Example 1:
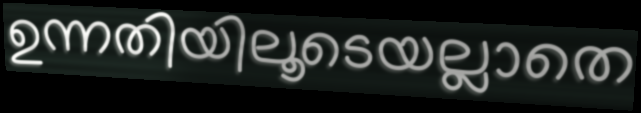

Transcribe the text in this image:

ഉന്നതിയിലൂടെയല്ലാതെ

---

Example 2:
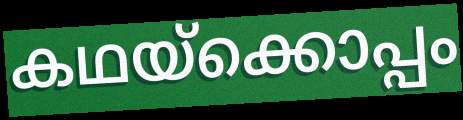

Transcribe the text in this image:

കഥയ്ക്കൊപ്പം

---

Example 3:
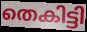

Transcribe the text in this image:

തെകിട്ടി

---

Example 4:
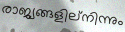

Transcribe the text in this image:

രാജ്യങ്ങളില്നിന്നും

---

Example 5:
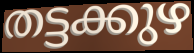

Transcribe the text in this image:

തട്ടക്കുഴ